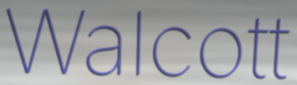
Walcott